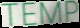
TEMP